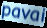
pavai